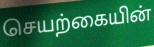
செயற்கையின்